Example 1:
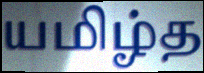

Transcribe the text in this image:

யமிழ்த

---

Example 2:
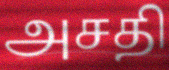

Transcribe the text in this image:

அசதி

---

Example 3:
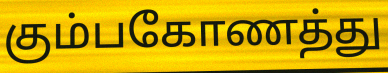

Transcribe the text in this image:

கும்பகோணத்து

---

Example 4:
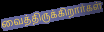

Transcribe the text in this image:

வைத்திருக்கிறார்கள்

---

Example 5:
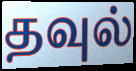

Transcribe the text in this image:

தவுல்